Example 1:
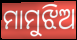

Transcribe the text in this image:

ମାମୁଝିଅ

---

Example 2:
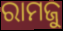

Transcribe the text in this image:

ରାମଜୁ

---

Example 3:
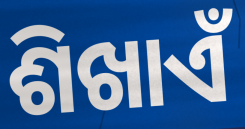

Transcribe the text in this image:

ଶିଖାଏଁ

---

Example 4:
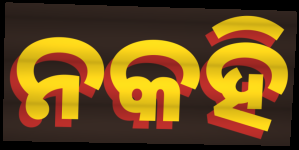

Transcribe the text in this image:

ନକହି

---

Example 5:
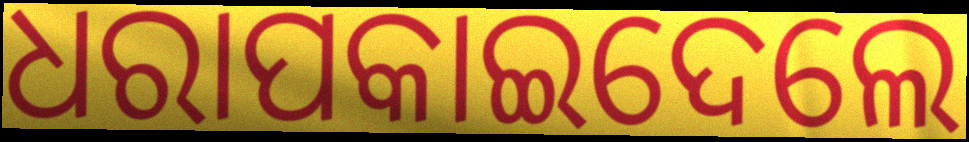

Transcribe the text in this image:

ଧରାପକାଇଦେଲେ